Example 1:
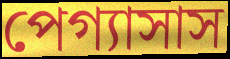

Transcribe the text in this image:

পেগ্যাসাস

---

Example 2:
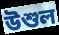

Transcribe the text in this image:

উশুল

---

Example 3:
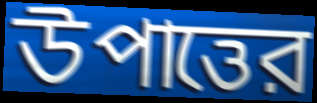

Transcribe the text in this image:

উপাত্তের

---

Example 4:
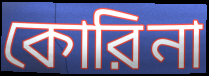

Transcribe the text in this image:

কোরিনা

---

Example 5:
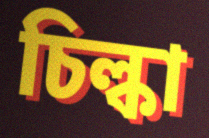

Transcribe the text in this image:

চিল্কা